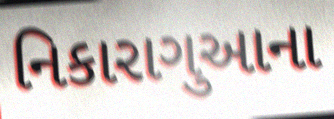
નિકારાગુઆના